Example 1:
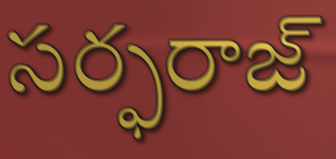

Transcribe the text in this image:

సర్ఫరాజ్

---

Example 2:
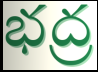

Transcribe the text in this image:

భద్ర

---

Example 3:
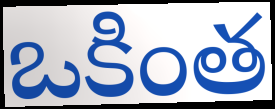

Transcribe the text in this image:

ఒకింత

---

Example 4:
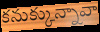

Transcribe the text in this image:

కనుక్కున్నావా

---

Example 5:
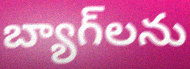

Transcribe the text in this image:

బ్యాగ్‌లను